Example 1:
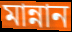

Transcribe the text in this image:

মান্নান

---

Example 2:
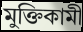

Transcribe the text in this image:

মুক্তিকামী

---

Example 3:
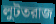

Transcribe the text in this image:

লুটতরাজ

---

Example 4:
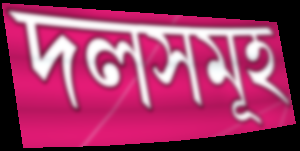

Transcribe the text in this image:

দলসমূহ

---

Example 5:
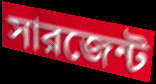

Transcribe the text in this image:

সারজেন্ট